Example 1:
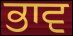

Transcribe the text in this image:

ਭਾਵ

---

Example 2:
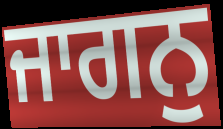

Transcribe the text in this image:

ਜਾਗਨੁ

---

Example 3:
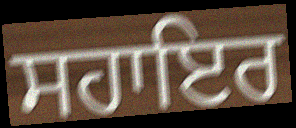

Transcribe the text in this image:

ਸਹਾਇਰ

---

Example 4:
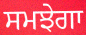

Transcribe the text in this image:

ਸਮਝੇਗਾ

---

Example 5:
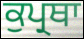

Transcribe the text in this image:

ਕੁਪ੍ਰਥਾ